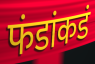
फंडांकडं